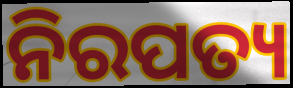
ନିରପତ୍ୟ